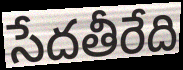
సేదతీరేది